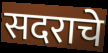
सदराचे